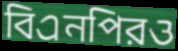
বিএনপিরও